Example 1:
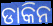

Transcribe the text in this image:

ଡାକିନ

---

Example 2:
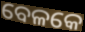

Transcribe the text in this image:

ବେଳକେ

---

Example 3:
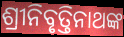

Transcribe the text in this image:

ଶ୍ରୀନିବୃତ୍ତିନାଥଙ୍କ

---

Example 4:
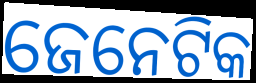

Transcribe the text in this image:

ଜେନେଟିକ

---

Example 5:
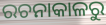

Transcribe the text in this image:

ରଚନାକାଳରୁ